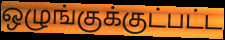
ஒழுங்குக்குட்பட்ட